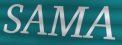
SAMA